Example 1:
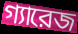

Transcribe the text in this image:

গ্যারেজ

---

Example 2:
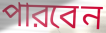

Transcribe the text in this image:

পারবেন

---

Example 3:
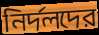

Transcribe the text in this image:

নির্দলদের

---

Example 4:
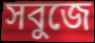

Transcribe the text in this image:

সবুজে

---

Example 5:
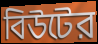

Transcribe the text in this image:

বিউটের